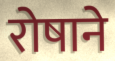
रोषाने